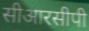
सीआरसीपी